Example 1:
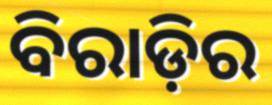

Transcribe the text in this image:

ବିରାଡ଼ିର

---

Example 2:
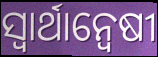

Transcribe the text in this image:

ସ୍ବାର୍ଥାନ୍ବେଷୀ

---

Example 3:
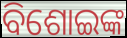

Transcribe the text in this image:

ବିଶୋଇଙ୍କ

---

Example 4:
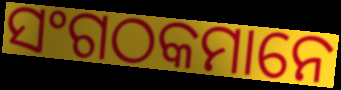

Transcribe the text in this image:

ସଂଗଠକମାନେ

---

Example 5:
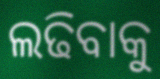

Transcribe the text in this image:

ଲଢିବାକୁ